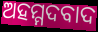
ଅହମ୍ମଦବାଦ